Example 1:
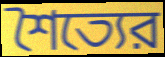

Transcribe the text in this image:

শৈত্যের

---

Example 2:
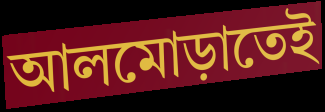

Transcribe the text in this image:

আলমোড়াতেই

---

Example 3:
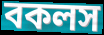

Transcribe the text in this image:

বকলস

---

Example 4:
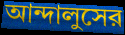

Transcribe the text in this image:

আন্দালুসের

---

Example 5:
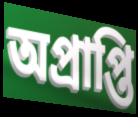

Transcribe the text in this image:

অপ্রাপ্তি